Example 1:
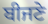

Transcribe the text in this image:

ਬੀਜਣੇ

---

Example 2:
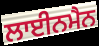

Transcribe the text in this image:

ਲਾਈਨਮੈਨ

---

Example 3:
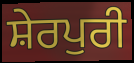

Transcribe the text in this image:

ਸ਼ੇਰਪੁਰੀ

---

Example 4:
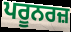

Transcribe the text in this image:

ਪਰੂਨਰਜ਼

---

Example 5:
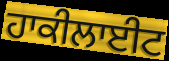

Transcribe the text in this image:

ਹਾਕੀਲਾਈਟ